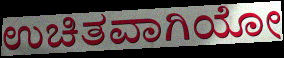
ಉಚಿತವಾಗಿಯೋ